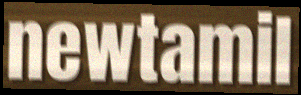
newtamil